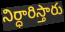
నిర్ధారిస్తారు